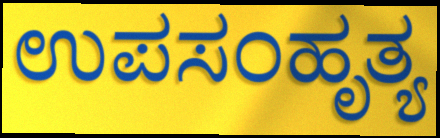
ಉಪಸಂಹೃತ್ಯ